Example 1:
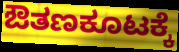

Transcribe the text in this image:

ಔತಣಕೂಟಕ್ಕೆ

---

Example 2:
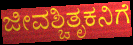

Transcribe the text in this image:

ಜೀವಶ್ಚಿತೃಕನಿಗೆ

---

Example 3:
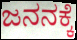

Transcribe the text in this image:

ಜನನಕ್ಕೆ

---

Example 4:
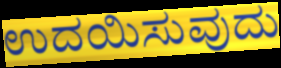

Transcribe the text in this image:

ಉದಯಿಸುವುದು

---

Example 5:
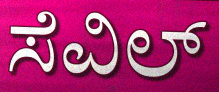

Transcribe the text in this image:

ಸೆವಿಲ್